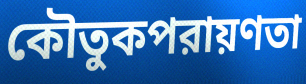
কৌতুকপরায়ণতা